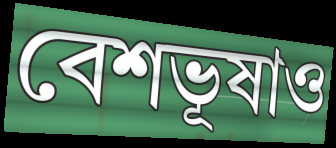
বেশভূষাও